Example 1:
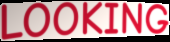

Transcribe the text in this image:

LOOKING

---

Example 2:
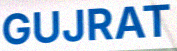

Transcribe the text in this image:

GUJRAT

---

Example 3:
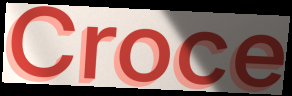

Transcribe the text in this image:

Croce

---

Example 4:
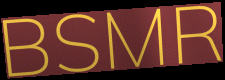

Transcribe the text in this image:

BSMR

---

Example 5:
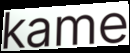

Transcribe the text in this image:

kame